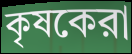
কৃষকেরা